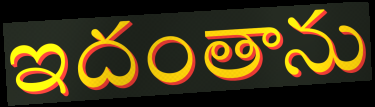
ఇదంతాను